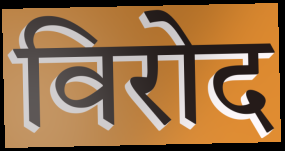
विरोद